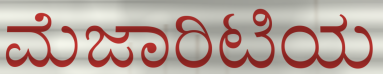
ಮೆಜಾರಿಟಿಯ